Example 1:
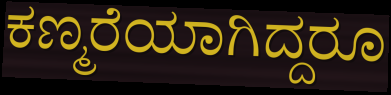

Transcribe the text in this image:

ಕಣ್ಮರೆಯಾಗಿದ್ದರೂ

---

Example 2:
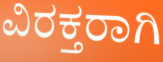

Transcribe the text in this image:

ವಿರಕ್ತರಾಗಿ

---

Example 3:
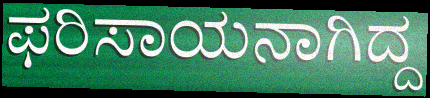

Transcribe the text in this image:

ಫರಿಸಾಯನಾಗಿದ್ದ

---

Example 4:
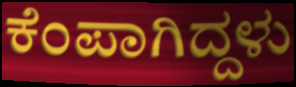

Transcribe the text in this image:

ಕೆಂಪಾಗಿದ್ದಳು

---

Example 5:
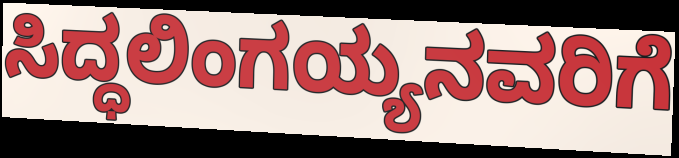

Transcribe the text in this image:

ಸಿದ್ಧಲಿಂಗಯ್ಯನವರಿಗೆ